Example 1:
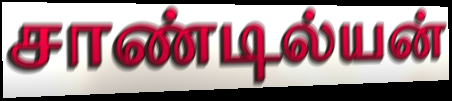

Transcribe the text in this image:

சாண்டில்யன்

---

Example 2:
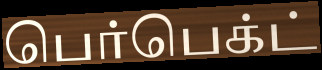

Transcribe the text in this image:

பெர்பெக்ட்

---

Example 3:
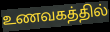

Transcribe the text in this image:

உணவகத்தில்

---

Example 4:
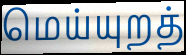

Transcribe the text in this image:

மெய்யுறத்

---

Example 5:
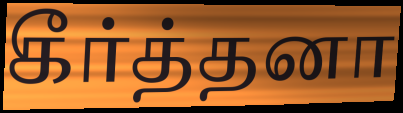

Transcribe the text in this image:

கீர்த்தனா